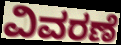
ವಿವರಣೆ